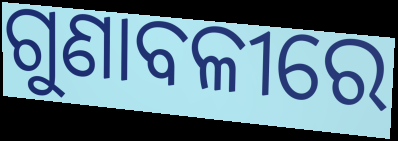
ଗୁଣାବଳୀରେ